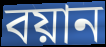
বয়ান